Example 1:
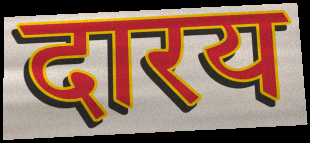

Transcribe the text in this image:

दारय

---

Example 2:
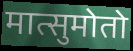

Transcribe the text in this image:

मात्सुमोतो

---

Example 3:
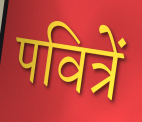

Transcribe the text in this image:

पवित्रें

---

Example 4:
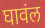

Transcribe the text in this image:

घावंल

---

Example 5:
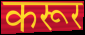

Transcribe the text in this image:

करूर